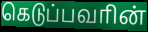
கெடுப்பவரின்